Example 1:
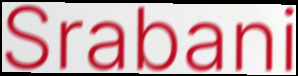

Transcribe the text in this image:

Srabani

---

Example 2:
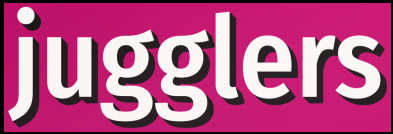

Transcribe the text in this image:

jugglers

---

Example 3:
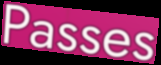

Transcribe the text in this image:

Passes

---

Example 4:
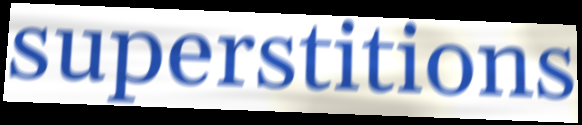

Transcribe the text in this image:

superstitions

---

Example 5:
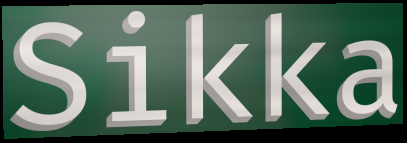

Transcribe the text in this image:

Sikka